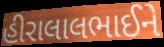
હીરાલાલભાઈને